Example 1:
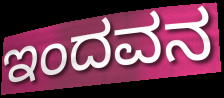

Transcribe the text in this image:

ಇಂದವನ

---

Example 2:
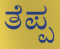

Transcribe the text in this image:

ತೆಪ್ಪ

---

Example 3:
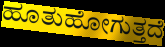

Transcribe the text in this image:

ಹೂತುಹೋಗುತ್ತದೆ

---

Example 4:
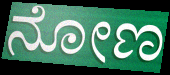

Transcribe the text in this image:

ನೋಣ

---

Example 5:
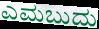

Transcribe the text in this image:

ಎಮಬುದು